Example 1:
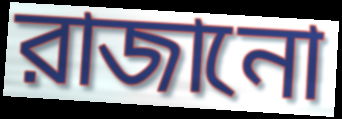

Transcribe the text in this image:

রাজানো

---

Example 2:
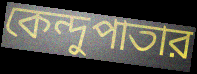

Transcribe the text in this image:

কেন্দুপাতার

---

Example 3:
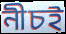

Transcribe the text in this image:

নীচই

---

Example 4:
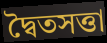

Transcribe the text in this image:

দ্বৈতসত্তা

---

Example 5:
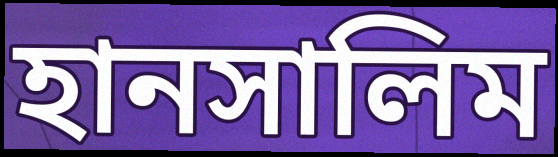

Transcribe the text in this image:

হানসালিম